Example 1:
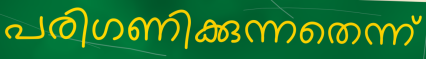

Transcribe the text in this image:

പരിഗണിക്കുന്നതെന്ന്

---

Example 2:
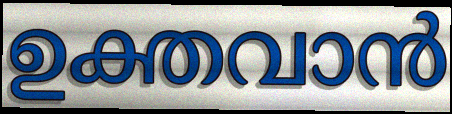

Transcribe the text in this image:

ഉക്തവാൻ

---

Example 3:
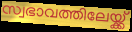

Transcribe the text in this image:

സ്വഭാവത്തിലേയ്ക്ക്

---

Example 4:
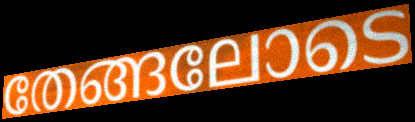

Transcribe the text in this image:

തേങ്ങലോടെ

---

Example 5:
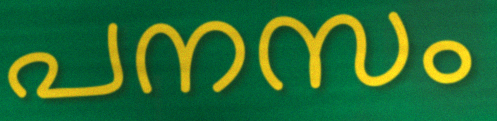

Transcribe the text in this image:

പനസം